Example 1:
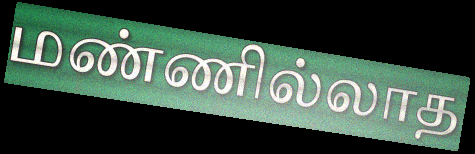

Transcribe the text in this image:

மண்ணில்லாத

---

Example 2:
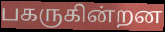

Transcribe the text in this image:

பகருகின்றன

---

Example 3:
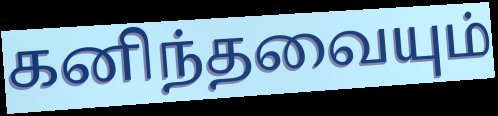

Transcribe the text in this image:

கனிந்தவையும்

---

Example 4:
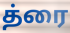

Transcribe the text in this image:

த்ரை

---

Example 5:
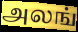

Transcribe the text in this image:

அலங்